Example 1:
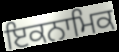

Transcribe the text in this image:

ਇਕਨਾਮਿਕ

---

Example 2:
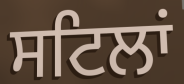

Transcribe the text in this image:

ਸਟਿਲਾਂ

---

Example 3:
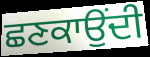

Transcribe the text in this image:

ਛਣਕਾਉਂਦੀ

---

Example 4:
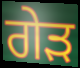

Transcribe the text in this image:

ਗੇੜ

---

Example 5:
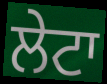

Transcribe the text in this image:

ਲੇਟਾ